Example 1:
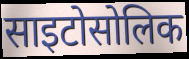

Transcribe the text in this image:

साइटोसोलिक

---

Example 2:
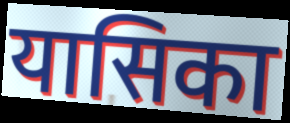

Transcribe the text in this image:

यासिका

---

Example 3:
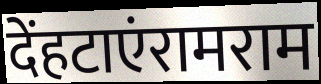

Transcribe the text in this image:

देंहटाएंरामराम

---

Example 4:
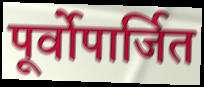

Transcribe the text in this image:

पूर्वोपार्जित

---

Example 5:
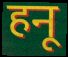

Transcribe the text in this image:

हनू